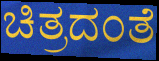
ಚಿತ್ರದಂತೆ